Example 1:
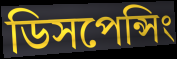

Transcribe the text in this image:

ডিসপেন্সিং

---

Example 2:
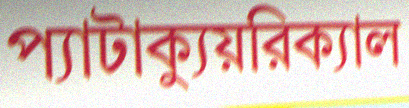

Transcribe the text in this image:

প্যাটাক্যুয়রিক্যাল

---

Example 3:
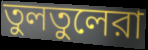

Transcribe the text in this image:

তুলতুলেরা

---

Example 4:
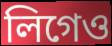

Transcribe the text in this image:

লিগেও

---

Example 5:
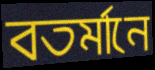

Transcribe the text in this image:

বতর্মানে